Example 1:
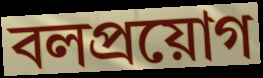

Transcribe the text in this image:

বলপ্ৰয়োগ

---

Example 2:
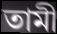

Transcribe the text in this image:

তামী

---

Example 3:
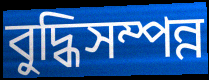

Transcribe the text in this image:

বুদ্ধিসম্পন্ন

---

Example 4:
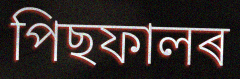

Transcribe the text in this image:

পিছফালৰ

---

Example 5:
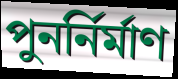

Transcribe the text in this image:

পুনৰ্নিৰ্মাণ